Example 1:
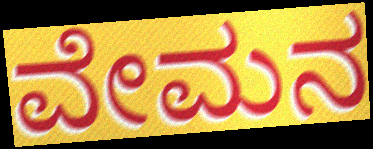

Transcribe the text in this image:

ವೇಮನ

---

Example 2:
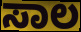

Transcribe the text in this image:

ಸಾಲ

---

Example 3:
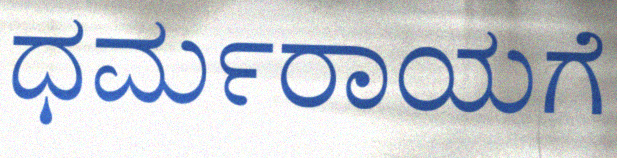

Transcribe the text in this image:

ಧರ್ಮರಾಯಗೆ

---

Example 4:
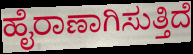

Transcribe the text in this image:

ಹೈರಾಣಾಗಿಸುತ್ತಿದೆ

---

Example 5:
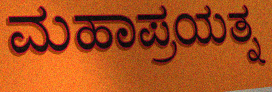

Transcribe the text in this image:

ಮಹಾಪ್ರಯತ್ನ